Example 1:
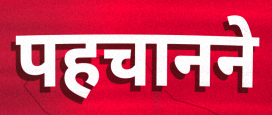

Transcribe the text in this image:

पहचानने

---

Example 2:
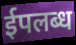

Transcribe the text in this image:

ईपलब्ध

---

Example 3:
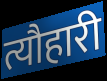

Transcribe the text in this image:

त्यौहारी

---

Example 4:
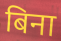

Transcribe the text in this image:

बिना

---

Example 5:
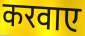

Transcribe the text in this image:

करवाए